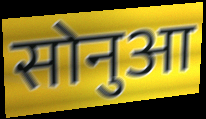
सोनुआ